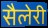
सैलेरी